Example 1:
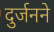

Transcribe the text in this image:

दुर्जनने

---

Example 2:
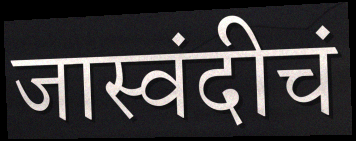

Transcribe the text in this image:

जास्वंदीचं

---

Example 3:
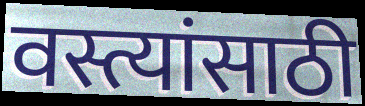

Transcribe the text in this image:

वस्त्यांसाठी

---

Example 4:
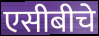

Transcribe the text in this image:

एसीबीचे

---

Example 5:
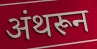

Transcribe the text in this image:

अंथरून